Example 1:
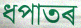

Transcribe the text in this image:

ধপাতৰ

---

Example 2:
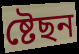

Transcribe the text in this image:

ষ্টেছন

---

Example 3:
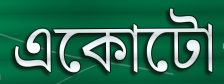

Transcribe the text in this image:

একোটো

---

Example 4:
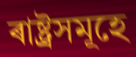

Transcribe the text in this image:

ৰাষ্ট্ৰসমূহে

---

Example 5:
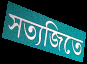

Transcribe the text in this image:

সত্যজিতে